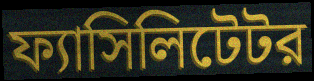
ফ্যাসিলিটেটর